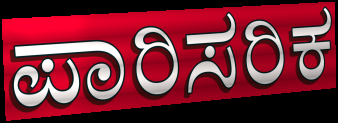
ಪಾರಿಸರಿಕ